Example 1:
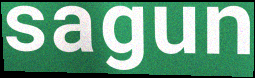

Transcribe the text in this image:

sagun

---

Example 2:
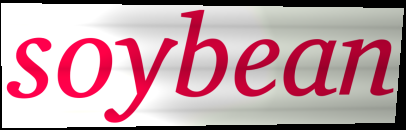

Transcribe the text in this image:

soybean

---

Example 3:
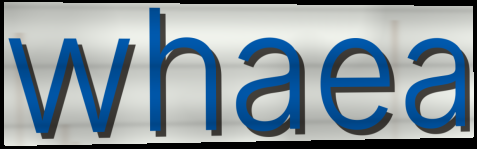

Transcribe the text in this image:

whaea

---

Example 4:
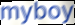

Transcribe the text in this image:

myboy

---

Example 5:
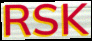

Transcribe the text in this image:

RSK